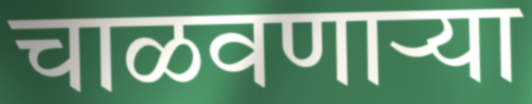
चाळवणाऱ्या